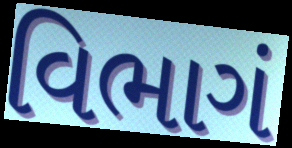
વિભાગં